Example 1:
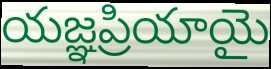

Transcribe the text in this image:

యజ్ఞప్రియాయై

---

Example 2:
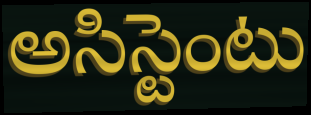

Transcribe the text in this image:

అసిస్టెంటు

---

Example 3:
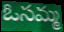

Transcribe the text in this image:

ఓసమ్మ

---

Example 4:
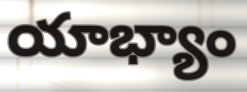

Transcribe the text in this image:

యాభ్యాం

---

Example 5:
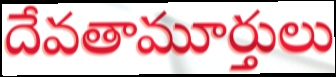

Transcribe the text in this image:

దేవతామూర్తులు